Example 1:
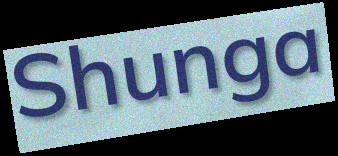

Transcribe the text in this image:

Shunga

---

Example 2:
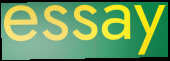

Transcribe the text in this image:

essay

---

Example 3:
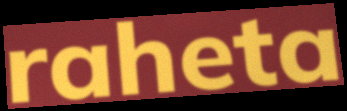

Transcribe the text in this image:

raheta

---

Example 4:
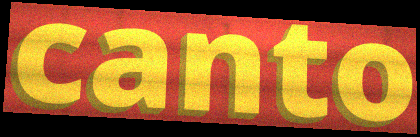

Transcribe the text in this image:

canto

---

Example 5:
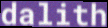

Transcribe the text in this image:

dalith